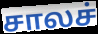
சாலச்